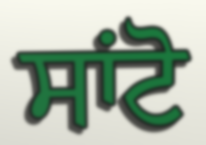
ਸਾਂਟੋ